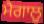
ਮੈਗਾਲੂ